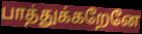
பாத்துக்கறேனே